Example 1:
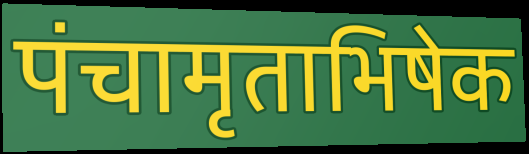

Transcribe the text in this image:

पंचामृताभिषेक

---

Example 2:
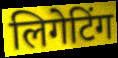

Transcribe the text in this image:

लिगेटिंग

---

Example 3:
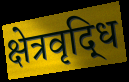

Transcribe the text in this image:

क्षेत्रवृद्धि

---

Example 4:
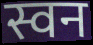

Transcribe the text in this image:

स्वन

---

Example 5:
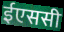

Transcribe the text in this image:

ईएससी